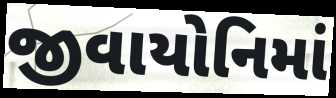
જીવાયોનિમાં